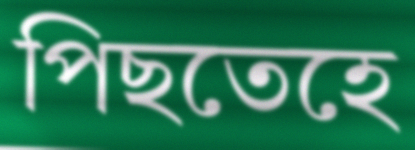
পিছতেহে